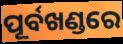
ପୂର୍ବଖଣ୍ଡରେ